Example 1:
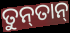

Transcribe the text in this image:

ତୁନ୍‍ତାନ୍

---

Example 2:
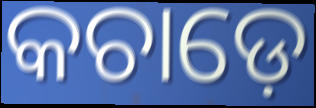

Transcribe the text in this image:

କଚାଡ଼େ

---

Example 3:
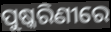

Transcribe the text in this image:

ପୁଷ୍କରିଣୀରେ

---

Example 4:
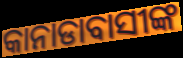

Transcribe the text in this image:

କାନାଡାବାସୀଙ୍କ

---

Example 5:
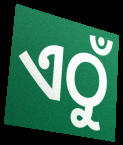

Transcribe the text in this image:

ଏଠୁଁ